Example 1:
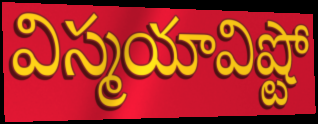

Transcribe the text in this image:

విస్మయావిష్టో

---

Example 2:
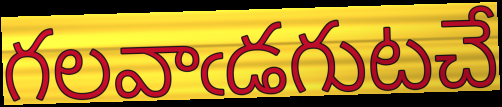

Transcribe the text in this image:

గలవాఁడగుటచే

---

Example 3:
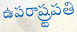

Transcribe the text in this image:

ఉపరాష్ర్టపతి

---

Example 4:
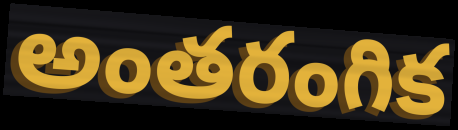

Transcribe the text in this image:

అంతరంగిక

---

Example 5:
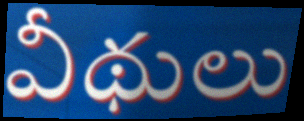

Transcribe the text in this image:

వీథులు